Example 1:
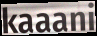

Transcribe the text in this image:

kaaani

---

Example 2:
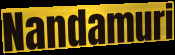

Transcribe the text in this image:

Nandamuri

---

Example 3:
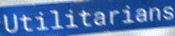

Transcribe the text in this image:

Utilitarians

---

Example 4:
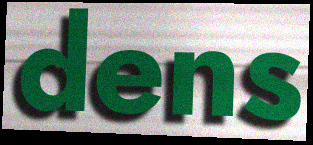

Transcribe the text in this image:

dens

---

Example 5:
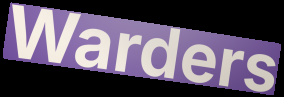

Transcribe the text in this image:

Warders